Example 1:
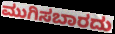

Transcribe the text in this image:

ಮುಗಿಸಬಾರದು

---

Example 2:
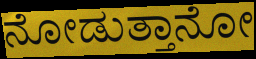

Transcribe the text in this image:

ನೋಡುತ್ತಾನೋ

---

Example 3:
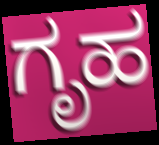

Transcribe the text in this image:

ಗೃಹ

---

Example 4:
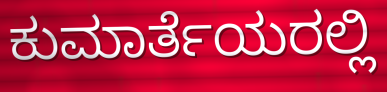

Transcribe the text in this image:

ಕುಮಾರ್ತೆಯರಲ್ಲಿ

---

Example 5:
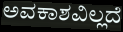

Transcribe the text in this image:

ಅವಕಾಶವಿಲ್ಲದೆ